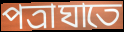
পত্রাঘাতে